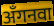
अँगनवा